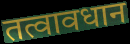
तत्वावधान